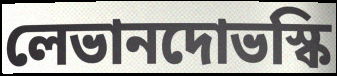
লেভানদোভস্কি